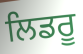
ਲਿਡਰੂ